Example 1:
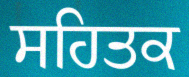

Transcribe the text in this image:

ਸਹਿਤਕ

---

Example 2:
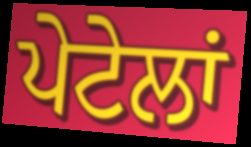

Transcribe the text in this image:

ਪੇਟੇਲਾਂ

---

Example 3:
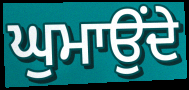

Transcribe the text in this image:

ਘੁਮਾਉਂਦੇ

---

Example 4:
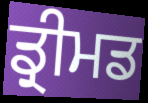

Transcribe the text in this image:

ਡ੍ਰੀਮਡ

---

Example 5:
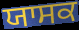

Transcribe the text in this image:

ਯਾਸਕ